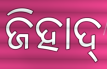
ଜିହାଦ୍